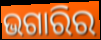
ଭଗାରିର